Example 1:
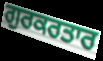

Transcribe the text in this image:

ਗੁਰਕਰਤਾਰ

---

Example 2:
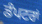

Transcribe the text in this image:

ਡੰਪਟਰਾਂ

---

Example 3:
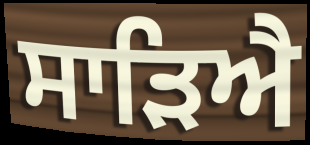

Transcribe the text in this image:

ਸਾੜਿਐ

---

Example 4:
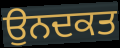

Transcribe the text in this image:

ਉਨਦਕਤ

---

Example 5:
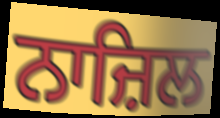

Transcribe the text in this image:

ਨਾਜ਼ਿਲ